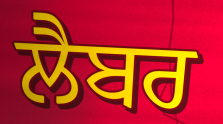
ਲੈਬਰ